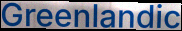
Greenlandic